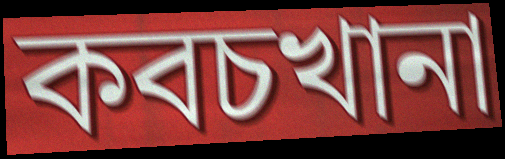
কবচখানা